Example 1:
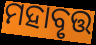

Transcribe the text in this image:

ମହାବୃତ୍ତ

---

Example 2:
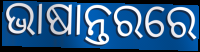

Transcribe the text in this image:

ଭାଷାନ୍ତରରେ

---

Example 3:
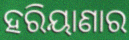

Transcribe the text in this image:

ହରିୟାଣାର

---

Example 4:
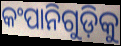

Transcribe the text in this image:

କଂପାନିଗୁଡ଼ିକୁ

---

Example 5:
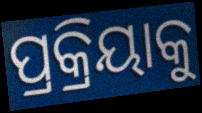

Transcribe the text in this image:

ପ୍ରକ୍ରିୟାକୁ